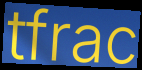
tfrac